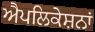
ਐਪਲਿਕੇਸ਼ਨਾਂ